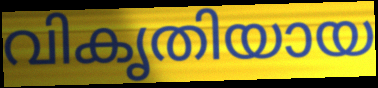
വികൃതിയായ